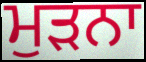
ਮੁੜਨਾ